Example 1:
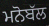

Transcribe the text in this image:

ਮਨੋਬੱਲ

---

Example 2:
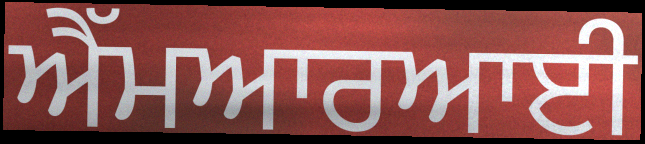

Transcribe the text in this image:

ਐੱਮਆਰਆਈ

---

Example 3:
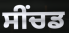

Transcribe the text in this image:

ਸੀਂਚਡ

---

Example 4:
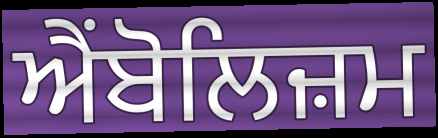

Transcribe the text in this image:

ਐਂਬੋਲਿਜ਼ਮ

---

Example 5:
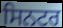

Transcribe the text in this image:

ਸਿਨਟਰ